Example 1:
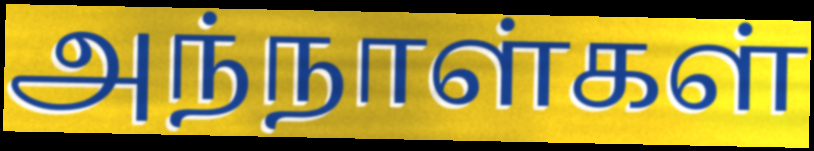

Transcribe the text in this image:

அந்நாள்கள்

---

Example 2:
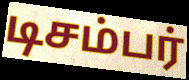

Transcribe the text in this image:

டிசம்பர்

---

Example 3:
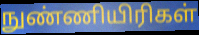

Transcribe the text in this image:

நுண்ணியிரிகள்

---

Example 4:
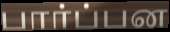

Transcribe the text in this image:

பார்ப்பன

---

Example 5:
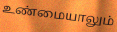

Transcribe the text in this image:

உண்மையாலும்